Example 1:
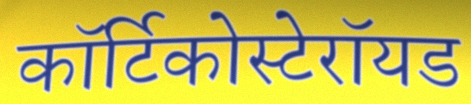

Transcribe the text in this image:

कॉर्टिकोस्टेरॉयड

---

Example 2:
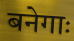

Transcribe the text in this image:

बनेगाः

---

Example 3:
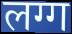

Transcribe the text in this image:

लग्ग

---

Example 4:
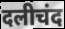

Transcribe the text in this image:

दलीचंद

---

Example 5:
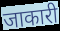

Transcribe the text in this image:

जाकारी